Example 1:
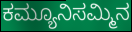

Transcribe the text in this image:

ಕಮ್ಯೂನಿಸಮ್ಮಿನ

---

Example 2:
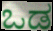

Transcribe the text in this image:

ಒಡ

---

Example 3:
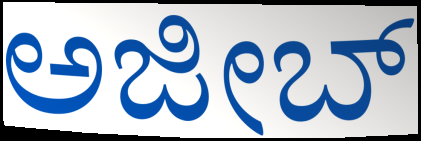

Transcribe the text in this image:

ಅಜೀಬ್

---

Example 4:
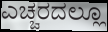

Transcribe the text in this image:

ಎಚ್ಚರದಲ್ಲೂ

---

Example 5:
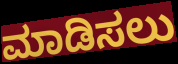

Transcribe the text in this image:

ಮಾಡಿಸಲು